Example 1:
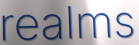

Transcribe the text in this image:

realms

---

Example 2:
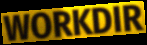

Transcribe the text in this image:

WORKDIR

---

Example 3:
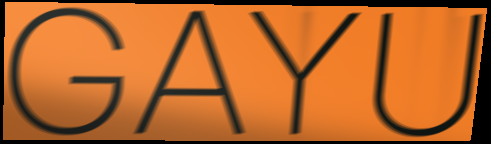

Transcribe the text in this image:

GAYU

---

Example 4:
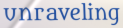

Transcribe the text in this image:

unraveling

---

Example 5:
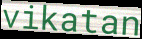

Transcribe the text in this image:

vikatan